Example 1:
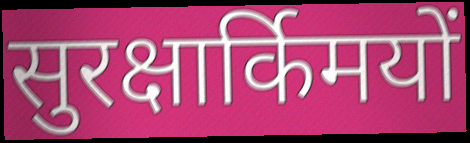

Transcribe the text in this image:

सुरक्षार्किमयों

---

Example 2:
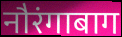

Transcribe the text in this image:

नौरंगाबाग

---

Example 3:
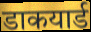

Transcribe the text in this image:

डाकयार्ड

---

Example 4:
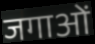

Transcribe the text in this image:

जगाओं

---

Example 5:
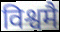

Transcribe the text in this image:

विश्वमै